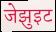
जेझुइट